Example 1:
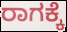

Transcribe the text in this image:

ರಾಗಕ್ಕೆ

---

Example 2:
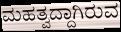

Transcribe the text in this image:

ಮಹತ್ವದ್ದಾಗಿರುವ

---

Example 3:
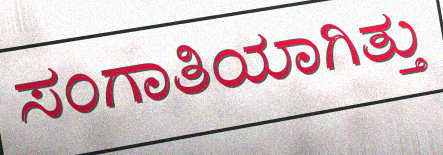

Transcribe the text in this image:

ಸಂಗಾತಿಯಾಗಿತ್ತು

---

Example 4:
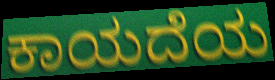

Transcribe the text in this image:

ಕಾಯದೆಯ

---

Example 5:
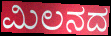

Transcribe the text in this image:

ಮಿಲನದ